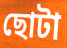
ছোটা